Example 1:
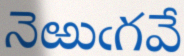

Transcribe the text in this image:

నెఱుఁగవే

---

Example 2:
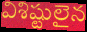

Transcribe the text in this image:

విశిష్టులైన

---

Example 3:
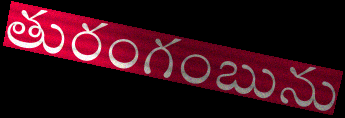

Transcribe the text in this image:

తురంగంబును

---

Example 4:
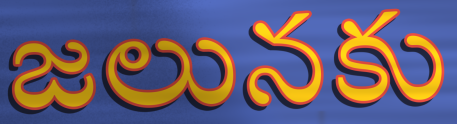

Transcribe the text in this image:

జలునకు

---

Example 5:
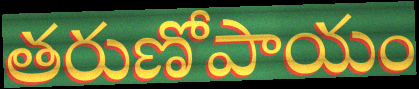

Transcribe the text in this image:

తరుణోపాయం